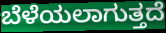
ಬೆಳೆಯಲಾಗುತ್ತದೆ